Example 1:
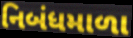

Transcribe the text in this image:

નિબંધમાળા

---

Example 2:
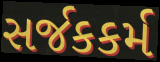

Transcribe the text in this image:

સર્જકકર્મ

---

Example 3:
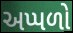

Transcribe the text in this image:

અપ્પળો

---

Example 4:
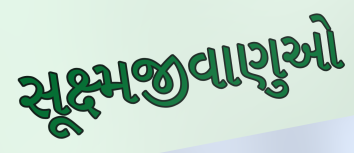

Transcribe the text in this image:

સૂક્ષ્મજીવાણુઓ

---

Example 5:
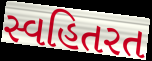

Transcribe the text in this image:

સ્વહિતરત